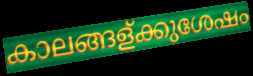
കാലങ്ങള്ക്കുശേഷം